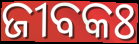
ଜୀବକଃ